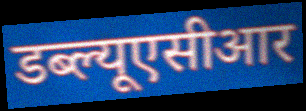
डब्ल्यूएसीआर